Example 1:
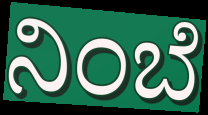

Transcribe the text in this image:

ನಿಂಬೆ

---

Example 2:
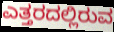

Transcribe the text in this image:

ಎತ್ತರದಲ್ಲಿರುವ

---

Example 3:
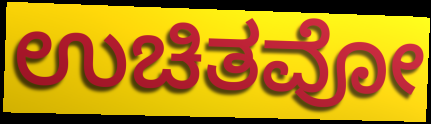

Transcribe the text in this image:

ಉಚಿತವೋ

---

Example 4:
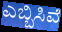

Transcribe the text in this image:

ಎಬ್ಬಿಸಿವೆ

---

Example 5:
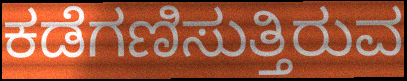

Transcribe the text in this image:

ಕಡೆಗಣಿಸುತ್ತಿರುವ